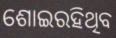
ଶୋଇରହିଥିବ